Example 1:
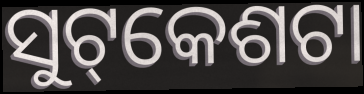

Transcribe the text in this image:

ସୁଟ୍‌କେଶଟା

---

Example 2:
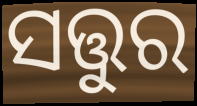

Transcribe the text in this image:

ସତ୍ତୁର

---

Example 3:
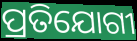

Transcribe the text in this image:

ପ୍ରତିଯୋଗୀ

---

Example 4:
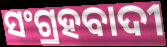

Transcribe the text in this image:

ସଂଗ୍ରହବାଦୀ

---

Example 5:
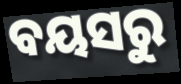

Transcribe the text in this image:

ବୟସରୁ